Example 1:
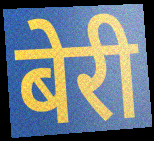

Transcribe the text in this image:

बेरी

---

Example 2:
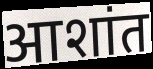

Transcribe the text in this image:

आशांत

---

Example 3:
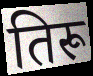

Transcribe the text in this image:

तिरू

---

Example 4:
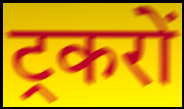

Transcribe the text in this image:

ट्रकरों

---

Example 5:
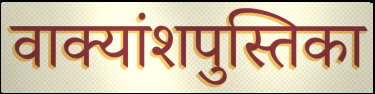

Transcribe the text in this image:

वाक्यांशपुस्तिका